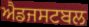
ਐਡਜਸਟਬਲ